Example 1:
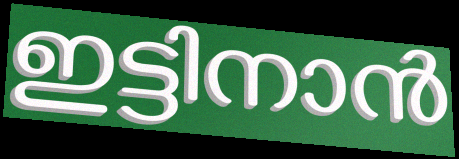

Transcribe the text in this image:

ഇട്ടിനാൻ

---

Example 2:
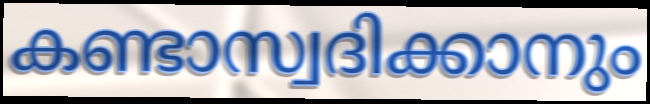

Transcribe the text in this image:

കണ്ടാസ്വദിക്കാനും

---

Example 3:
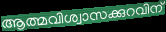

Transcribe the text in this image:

ആത്മവിശ്വാസക്കുറവിന്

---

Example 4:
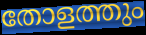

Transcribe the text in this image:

തോളത്തും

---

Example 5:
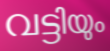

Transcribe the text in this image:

വട്ടിയും